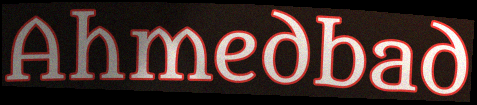
Ahmedbad